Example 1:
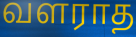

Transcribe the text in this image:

வளராத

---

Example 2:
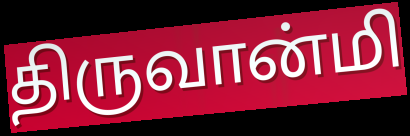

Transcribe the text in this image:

திருவான்மி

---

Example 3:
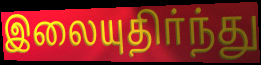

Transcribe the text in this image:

இலையுதிர்ந்து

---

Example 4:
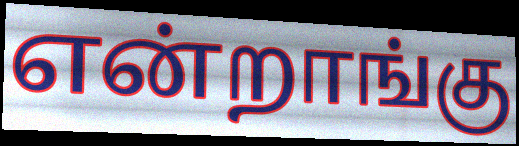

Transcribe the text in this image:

என்றாங்கு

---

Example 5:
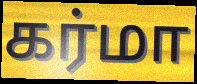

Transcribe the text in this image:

கர்மா